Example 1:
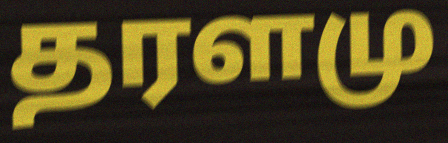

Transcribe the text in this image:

தரளமு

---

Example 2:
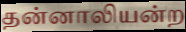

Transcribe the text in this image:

தன்னாலியன்ற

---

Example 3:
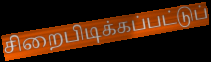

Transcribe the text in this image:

சிறைபிடிக்கப்பட்டுப்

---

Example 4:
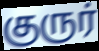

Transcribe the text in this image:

குருர்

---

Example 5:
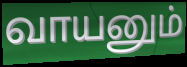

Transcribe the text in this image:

வாயனும்